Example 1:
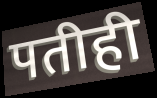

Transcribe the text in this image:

पतीही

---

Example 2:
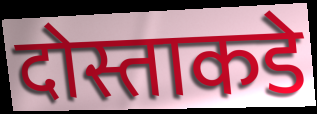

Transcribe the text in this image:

दोस्ताकडे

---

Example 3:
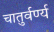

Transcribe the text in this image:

चातुर्वर्ण्य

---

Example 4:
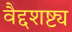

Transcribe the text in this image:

वैद्दशष्ट्य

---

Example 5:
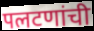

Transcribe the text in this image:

पलटणांची